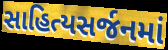
સાહિત્યસર્જનમાં